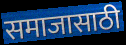
समाजासाठी